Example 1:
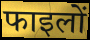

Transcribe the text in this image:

फाइलों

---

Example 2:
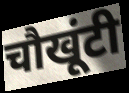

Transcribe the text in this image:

चौखूंटी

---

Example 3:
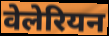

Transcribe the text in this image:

वेलेरियन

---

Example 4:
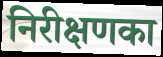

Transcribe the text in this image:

निरीक्षणका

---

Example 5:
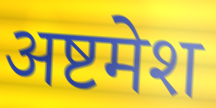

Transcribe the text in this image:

अष्टमेश